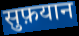
सुफ़यान